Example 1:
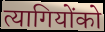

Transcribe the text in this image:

त्यागियोंको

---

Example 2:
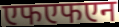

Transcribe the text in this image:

एफएफएन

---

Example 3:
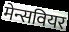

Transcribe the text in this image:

मेन्सवियर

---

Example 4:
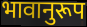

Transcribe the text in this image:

भावानुरूप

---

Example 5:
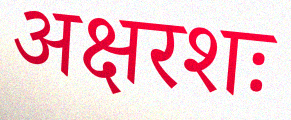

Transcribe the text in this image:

अक्षरशः